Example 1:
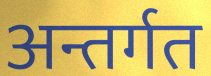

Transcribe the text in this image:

अन्‍तर्गत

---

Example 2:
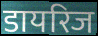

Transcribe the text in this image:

डायरिज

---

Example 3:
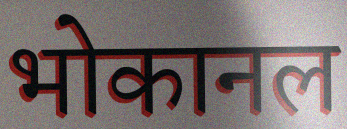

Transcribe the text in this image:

भोकानल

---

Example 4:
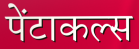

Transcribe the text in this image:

पेंटाकल्स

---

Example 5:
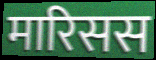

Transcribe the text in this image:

मारिसस